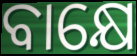
ବାକ୍ଷେ